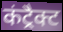
कंट्रैक्ट